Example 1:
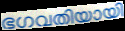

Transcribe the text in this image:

ഭഗവതിയായി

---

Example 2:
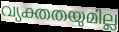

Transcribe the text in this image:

വ്യക്തതയുമില്ല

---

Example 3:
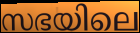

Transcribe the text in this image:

സഭയിലെ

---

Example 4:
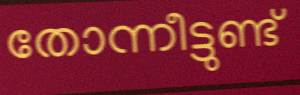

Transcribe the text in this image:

തോന്നീട്ടുണ്ട്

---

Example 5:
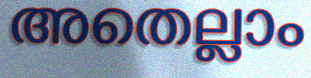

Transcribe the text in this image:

അതെല്ലാം